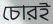
চোরই